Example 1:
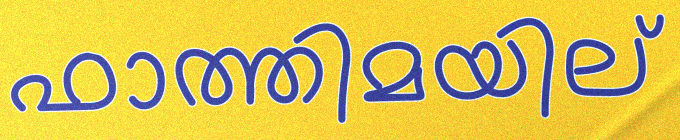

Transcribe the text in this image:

ഫാത്തിമയില്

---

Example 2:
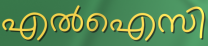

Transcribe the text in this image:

എൽഐസി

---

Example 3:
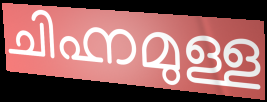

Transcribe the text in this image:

ചിഹ്നമുള്ള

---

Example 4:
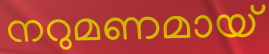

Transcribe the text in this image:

നറുമണമായ്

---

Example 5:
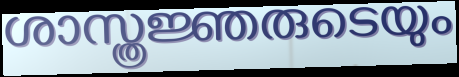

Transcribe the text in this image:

ശാസ്ത്രജ്ഞരുടെയും